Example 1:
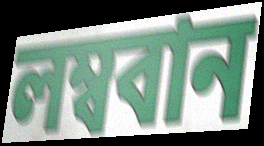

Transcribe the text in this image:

লম্ববান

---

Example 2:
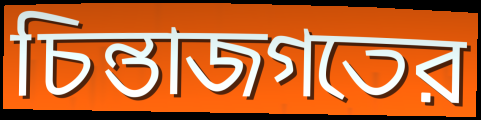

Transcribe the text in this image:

চিন্তাজগতের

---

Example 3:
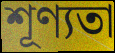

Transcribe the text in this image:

শূণ্যতা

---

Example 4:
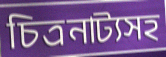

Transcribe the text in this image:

চিত্রনাট্যসহ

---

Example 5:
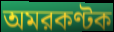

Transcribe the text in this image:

অমরকণ্টক